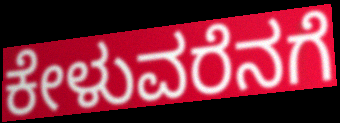
ಕೇಳುವರೆನಗೆ